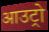
आउट्रो